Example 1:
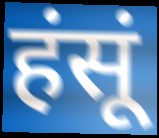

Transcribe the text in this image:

हंसूं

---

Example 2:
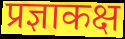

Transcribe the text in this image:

प्रज्ञाकक्ष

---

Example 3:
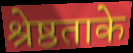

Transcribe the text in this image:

श्रेष्ठताके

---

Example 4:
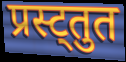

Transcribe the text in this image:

प्रस्ट्तुत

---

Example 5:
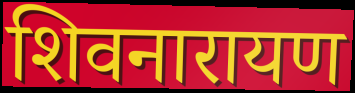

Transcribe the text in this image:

शिवनारायण